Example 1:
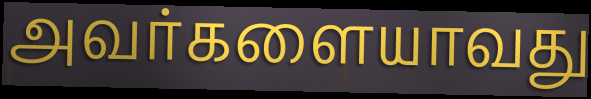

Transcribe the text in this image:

அவர்களையாவது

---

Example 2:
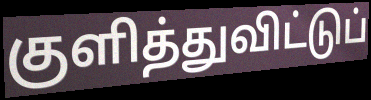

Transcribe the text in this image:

குளித்துவிட்டுப்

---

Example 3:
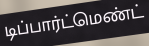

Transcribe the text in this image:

டிப்பார்ட்மெண்ட்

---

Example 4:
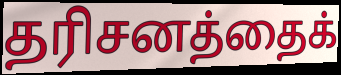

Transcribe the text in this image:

தரிசனத்தைக்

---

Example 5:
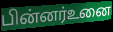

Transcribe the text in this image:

பின்னர்உனை